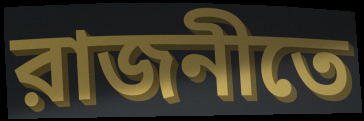
রাজনীতে